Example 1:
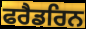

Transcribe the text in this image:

ਫਰੈਡਰਿਨ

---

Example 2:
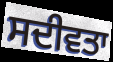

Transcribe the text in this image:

ਸਦੀਵਤਾ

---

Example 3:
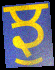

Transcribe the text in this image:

ਝੁ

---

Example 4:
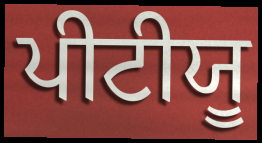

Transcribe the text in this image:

ਪੀਟੀਯੂ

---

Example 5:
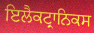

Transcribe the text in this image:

ਇਲੈਕਟ੍ਰਾਨਿਕਸ